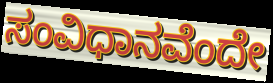
ಸಂವಿಧಾನವೆಂದೇ